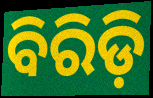
ବିରିଡ଼ି